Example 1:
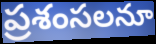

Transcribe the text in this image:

ప్రశంసలనూ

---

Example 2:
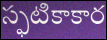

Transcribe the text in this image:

స్ఫటికాకార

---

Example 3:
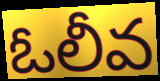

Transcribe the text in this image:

ఓలీవ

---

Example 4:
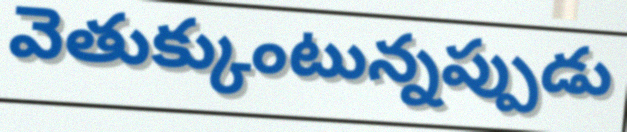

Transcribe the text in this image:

వెతుక్కుంటున్నప్పుడు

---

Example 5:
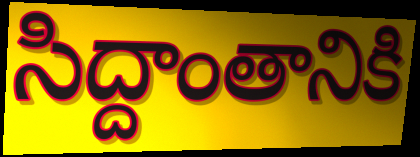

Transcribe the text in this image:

సిద్దాంతానికి